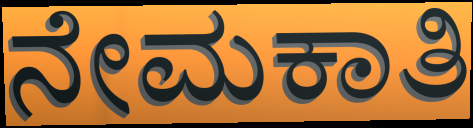
ನೇಮಕಾತಿ